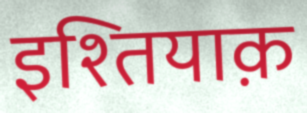
इश्तियाक़